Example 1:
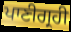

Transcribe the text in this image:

ਪਾਣੀਗ੍ਰਹੀ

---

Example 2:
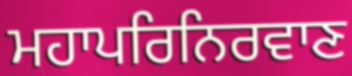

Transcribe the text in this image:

ਮਹਾਪਰਿਨਿਰਵਾਣ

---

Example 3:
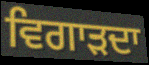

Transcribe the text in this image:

ਵਿਗਾੜਦਾ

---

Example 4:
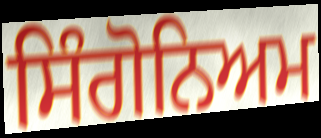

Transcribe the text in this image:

ਸਿੰਗੋਨਿਅਮ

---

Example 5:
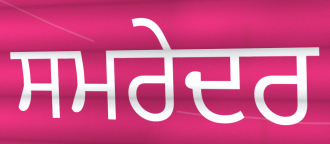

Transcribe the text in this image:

ਸਮਰੇਦਰ